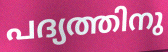
പദ്യത്തിനു